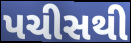
પચીસથી